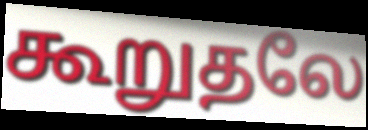
கூறுதலே